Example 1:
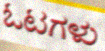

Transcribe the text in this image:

ಓಟಗಳು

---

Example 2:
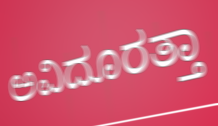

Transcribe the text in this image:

ಅವಿದೂರತ್ತಾ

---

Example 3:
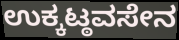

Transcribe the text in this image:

ಉಕ್ಕಟ್ಠವಸೇನ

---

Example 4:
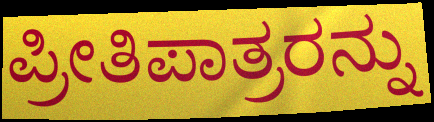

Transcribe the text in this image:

ಪ್ರೀತಿಪಾತ್ರರನ್ನು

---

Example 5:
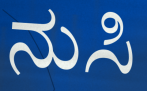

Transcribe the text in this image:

ನುಸಿ